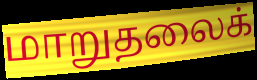
மாறுதலைக்